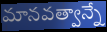
మానవత్వాన్నే